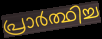
പ്രാർത്ഥിച്ച